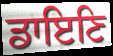
ਡਾਇਣਿ